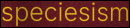
speciesism